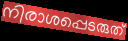
നിരാശപ്പെടരുത്